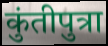
कुंतीपुत्रा